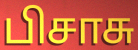
பிசாசு